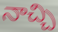
నాచ్చి